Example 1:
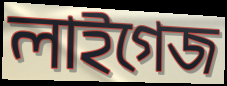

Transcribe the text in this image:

লাইগেজ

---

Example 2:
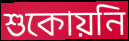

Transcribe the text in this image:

শুকোয়নি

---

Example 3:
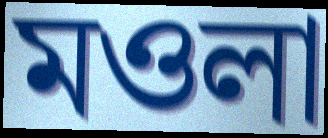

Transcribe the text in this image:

মওলা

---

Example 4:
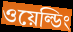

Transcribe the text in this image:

ওয়েল্ডিং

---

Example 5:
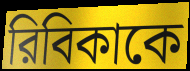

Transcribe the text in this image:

রিবিকাকে